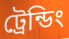
ট্রেন্ডিং